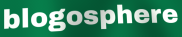
blogosphere